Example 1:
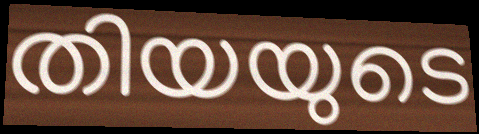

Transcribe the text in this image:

തിയയുടെ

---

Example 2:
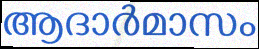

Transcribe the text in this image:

ആദാർമാസം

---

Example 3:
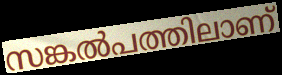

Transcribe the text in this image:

സങ്കൽപത്തിലാണ്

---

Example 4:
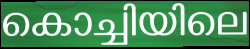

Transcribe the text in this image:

കൊച്ചിയിലെ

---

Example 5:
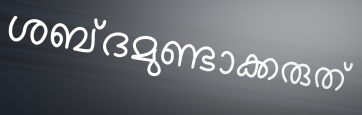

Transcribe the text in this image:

ശബ്ദമുണ്ടാക്കരുത്